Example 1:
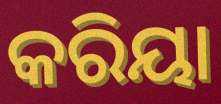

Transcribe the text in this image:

କରିୟା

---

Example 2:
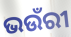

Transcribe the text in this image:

ଭଉଁରୀ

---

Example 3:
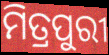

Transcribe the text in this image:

ମିତ୍ରପୁରୀ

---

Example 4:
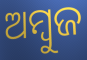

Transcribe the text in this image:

ଅମ୍ୱୁଜ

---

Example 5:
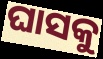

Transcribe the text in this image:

ଘାସକୁ